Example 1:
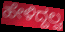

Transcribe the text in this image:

ಹೇಳಿದ್ದಲ್ವ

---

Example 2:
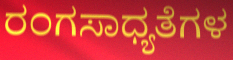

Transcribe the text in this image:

ರಂಗಸಾಧ್ಯತೆಗಳ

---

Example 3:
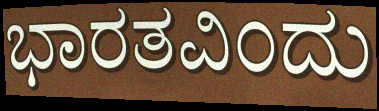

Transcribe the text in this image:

ಭಾರತವಿಂದು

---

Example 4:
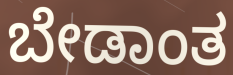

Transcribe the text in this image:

ಬೇಡಾಂತ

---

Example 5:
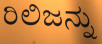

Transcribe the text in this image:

ರಿಲಿಜನ್ನು